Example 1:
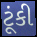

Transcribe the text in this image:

ટૂંકી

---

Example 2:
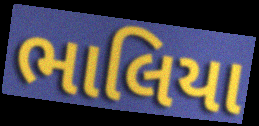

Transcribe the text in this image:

ભાલિયા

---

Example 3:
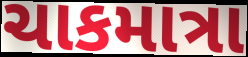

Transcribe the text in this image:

ચાકમાત્રા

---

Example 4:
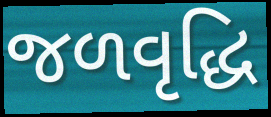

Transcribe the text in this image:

જળવૃદ્ધિ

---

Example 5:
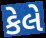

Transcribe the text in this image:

કેલે